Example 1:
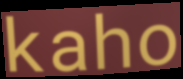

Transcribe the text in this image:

kaho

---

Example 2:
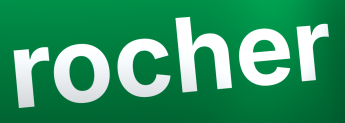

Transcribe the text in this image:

rocher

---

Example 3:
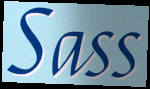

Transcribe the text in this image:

Sass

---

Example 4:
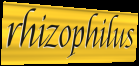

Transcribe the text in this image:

rhizophilus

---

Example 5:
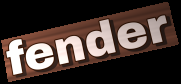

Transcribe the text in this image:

fender